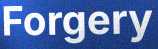
Forgery